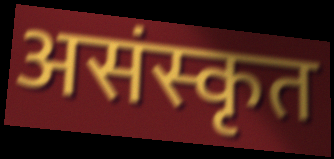
असंस्कृत